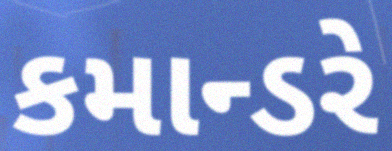
કમાન્ડરે